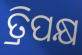
ତ୍ରିପକ୍ଷ